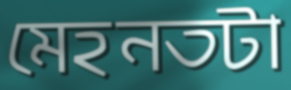
মেহনতটা